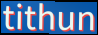
tithun